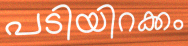
പടിയിറക്കം